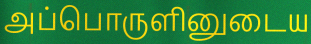
அப்பொருளினுடைய